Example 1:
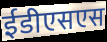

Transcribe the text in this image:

ईडीएसएस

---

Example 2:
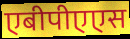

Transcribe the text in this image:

एबीपीएएस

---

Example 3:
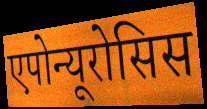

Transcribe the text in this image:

एपोन्यूरोसिस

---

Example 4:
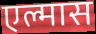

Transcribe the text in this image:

एल्मास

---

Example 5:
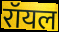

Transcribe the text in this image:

रॉयल